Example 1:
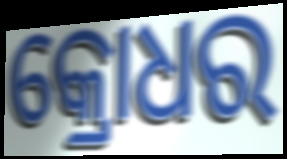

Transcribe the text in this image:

କ୍ରୋଧର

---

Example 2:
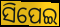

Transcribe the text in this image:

ସିପେଇ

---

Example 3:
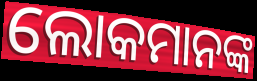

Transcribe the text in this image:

ଲୋକମାନଙ୍କ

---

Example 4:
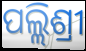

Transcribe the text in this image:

ପଲ୍ଲିଶ୍ରୀ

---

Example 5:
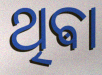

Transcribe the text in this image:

ଥିଵା